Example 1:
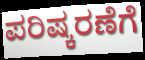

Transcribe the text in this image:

ಪರಿಷ್ಕರಣೆಗೆ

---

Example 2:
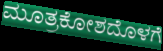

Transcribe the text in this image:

ಮೂತ್ರಕೋಶದೊಳಗೆ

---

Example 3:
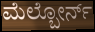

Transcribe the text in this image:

ಮೆಲ್ಬೋರ್ನ್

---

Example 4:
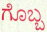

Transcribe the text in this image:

ಗೊಬ್ಬ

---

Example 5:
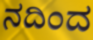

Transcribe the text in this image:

ನದಿಂದ